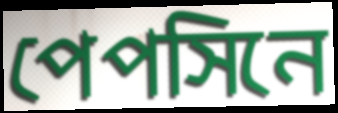
পেপসিনে